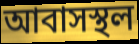
আবাসস্থল